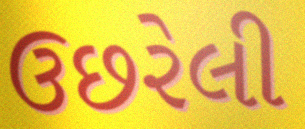
ઉછરેલી